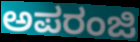
ಅಪರಂಜಿ